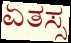
ಏತಸ್ಸ